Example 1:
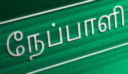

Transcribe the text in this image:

நேப்பாளி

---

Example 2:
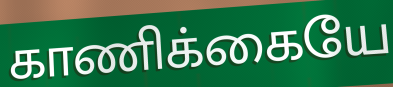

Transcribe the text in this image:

காணிக்கையே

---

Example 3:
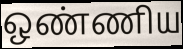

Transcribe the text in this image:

ஒண்ணிய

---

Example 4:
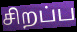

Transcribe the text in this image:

சிறப்ப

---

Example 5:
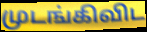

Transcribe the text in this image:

முடங்கிவிட